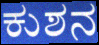
ಕುಶನ